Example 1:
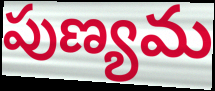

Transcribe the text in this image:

పుణ్యమ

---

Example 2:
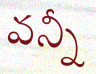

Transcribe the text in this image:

వన్నీ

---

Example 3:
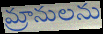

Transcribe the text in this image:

మ్రానులను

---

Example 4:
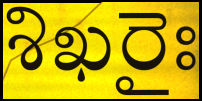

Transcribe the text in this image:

శిఖరైః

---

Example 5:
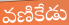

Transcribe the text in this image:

వణికేడు